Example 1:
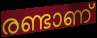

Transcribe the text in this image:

രണ്ടാണ്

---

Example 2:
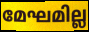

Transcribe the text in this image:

മേഘമില്ല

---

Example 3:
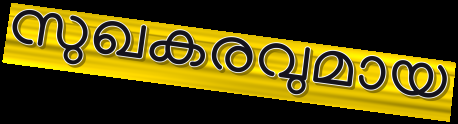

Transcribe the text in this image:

സുഖകരവുമായ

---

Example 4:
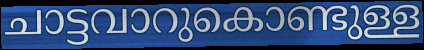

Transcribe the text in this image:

ചാട്ടവാറുകൊണ്ടുള്ള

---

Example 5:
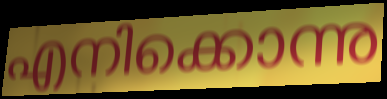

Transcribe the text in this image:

എനിക്കൊന്നു